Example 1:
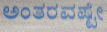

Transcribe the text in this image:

ಅಂತರವಷ್ಟೇ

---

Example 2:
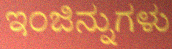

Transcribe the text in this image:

ಇಂಜಿನ್ನುಗಳು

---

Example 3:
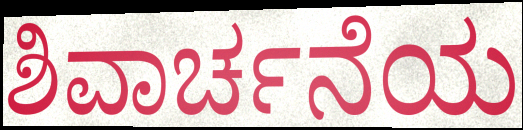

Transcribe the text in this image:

ಶಿವಾರ್ಚನೆಯ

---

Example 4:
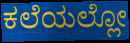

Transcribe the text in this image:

ಕಲೆಯಲ್ಲೋ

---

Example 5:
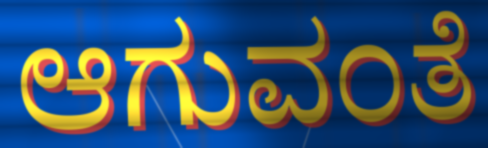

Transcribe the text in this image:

ಆಗುವಂತೆ